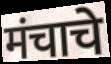
मंचाचे